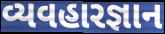
વ્યવહારજ્ઞાન